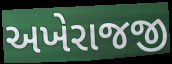
અખેરાજજી